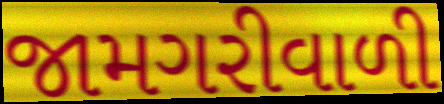
જામગરીવાળી